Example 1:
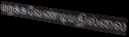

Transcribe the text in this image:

மறக்கவேண்டியதில்லை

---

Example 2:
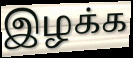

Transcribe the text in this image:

இழக்க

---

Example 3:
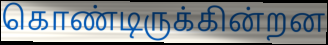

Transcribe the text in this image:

கொண்டிருக்கின்றன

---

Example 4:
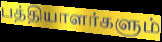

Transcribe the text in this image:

பத்தியாளர்களும்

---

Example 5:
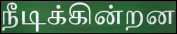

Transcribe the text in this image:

நீடிக்கின்றன